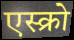
एस्क्रो